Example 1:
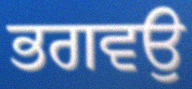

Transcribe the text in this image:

ਭਗਵਉ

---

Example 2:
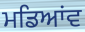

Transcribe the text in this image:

ਮਡਿਆਂਵ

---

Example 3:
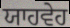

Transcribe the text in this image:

ਯਾਹਵੇਹ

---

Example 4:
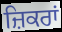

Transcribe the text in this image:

ਜ਼ਿਕਰਾਂ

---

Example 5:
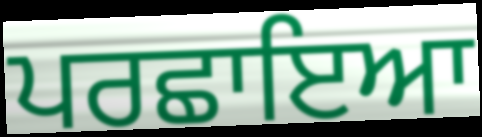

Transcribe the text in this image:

ਪਰਛਾਇਆ